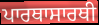
ਪਾਰਥਾਸਾਰਥੀ